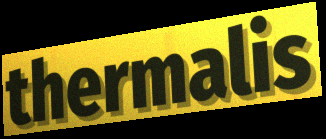
thermalis